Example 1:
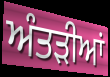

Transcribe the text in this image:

ਅੰਤੜੀਆਂ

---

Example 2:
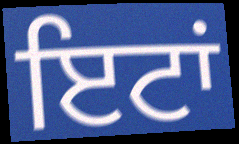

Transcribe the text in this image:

ਇਟਾਂ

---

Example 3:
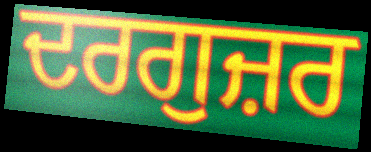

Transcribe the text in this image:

ਦਰਗੁਜ਼ਰ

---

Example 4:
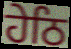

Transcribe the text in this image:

ਹੇਠਿ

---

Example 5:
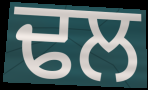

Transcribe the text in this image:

ਢਲ